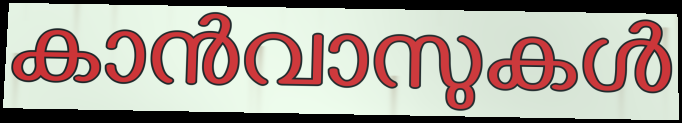
കാൻവാസുകൾ